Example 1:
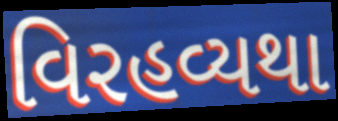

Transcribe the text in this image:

વિરહવ્યથા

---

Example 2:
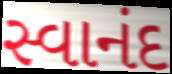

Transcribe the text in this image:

સ્વાનંદ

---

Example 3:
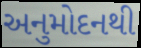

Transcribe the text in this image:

અનુમોદનથી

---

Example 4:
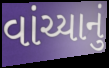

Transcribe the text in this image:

વાંચ્યાનું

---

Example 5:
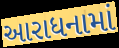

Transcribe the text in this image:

આરાધનામાં